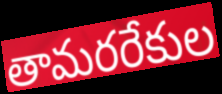
తామరరేకుల